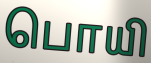
பொயி